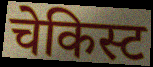
चेकिस्ट